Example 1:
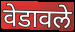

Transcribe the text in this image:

वेडावले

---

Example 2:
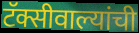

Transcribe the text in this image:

टॅक्सीवाल्यांची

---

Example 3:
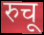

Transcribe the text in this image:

रुचू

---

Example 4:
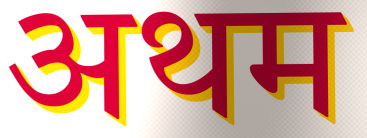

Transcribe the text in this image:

अथम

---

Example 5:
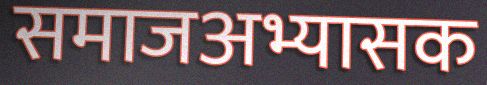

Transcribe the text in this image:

समाजअभ्यासक